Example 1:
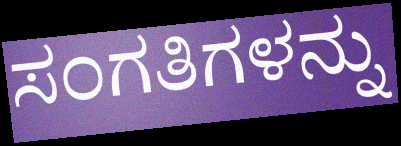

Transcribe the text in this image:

ಸಂಗತಿಗಳನ್ನು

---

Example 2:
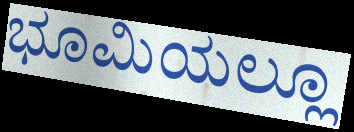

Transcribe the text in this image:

ಭೂಮಿಯಲ್ಲೂ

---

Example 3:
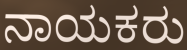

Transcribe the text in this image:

ನಾಯಕರು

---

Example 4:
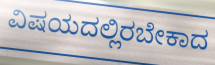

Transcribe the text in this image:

ವಿಷಯದಲ್ಲಿರಬೇಕಾದ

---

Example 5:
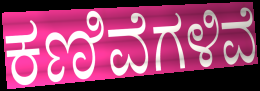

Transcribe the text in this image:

ಕಣಿವೆಗಳಿವೆ